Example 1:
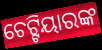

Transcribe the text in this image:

ଚେଟ୍ଟିୟାରଙ୍କ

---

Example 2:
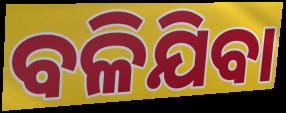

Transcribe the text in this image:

ବଳିଯିବା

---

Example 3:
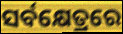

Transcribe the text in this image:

ସର୍ବକ୍ଷେତ୍ରରେ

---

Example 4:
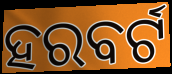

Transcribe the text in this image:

ହରବର୍ଟ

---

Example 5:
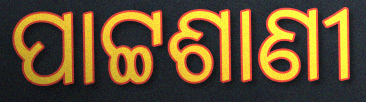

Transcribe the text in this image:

ପାଟ୍ଟଶାଣୀ